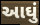
આઘું